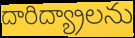
దారిద్య్రాలను